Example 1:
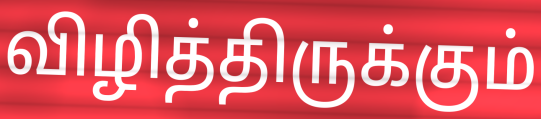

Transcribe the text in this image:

விழித்திருக்கும்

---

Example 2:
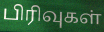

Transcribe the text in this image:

பிரிவுகள்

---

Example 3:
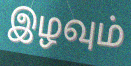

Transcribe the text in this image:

இழவும்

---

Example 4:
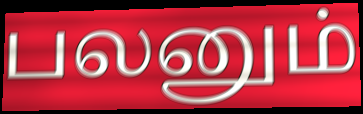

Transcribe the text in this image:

பலனும்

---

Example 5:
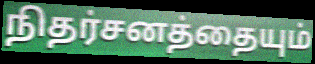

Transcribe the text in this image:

நிதர்சனத்தையும்